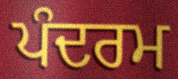
ਪੰਦਰਮ